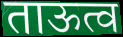
ताऊत्व